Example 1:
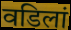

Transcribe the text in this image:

वडिलां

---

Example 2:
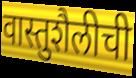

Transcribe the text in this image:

वास्तुशैलीची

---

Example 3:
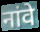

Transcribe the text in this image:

नांवे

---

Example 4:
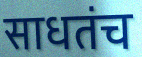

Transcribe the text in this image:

साधतंच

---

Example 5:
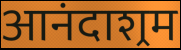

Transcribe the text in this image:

आनंदाश्रम